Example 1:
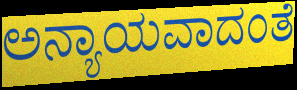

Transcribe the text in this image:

ಅನ್ಯಾಯವಾದಂತೆ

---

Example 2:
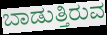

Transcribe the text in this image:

ಬಾಡುತ್ತಿರುವ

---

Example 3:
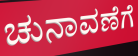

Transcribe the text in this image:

ಚುನಾವಣೆಗೆ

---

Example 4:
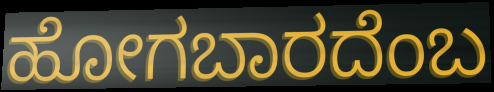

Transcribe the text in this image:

ಹೋಗಬಾರದೆಂಬ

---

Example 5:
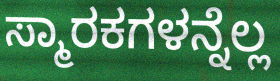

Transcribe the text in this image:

ಸ್ಮಾರಕಗಳನ್ನೆಲ್ಲ